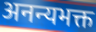
अनन्यभक्त